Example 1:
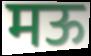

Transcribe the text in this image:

मऊ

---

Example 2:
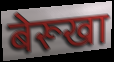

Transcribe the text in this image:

बेरूखा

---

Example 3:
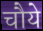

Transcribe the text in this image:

चौये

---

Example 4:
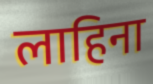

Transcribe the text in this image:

लाहिना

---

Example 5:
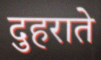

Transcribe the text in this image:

दुहराते